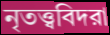
নৃতত্ত্ববিদরা